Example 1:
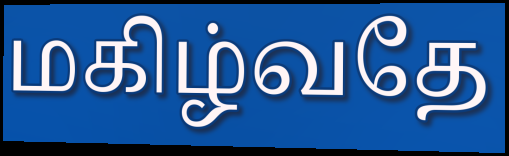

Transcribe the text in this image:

மகிழ்வதே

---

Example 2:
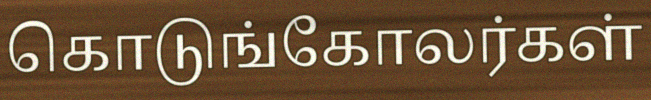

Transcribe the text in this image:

கொடுங்கோலர்கள்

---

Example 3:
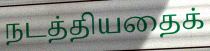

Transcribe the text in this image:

நடத்தியதைக்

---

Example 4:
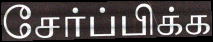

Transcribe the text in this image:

சேர்ப்பிக்க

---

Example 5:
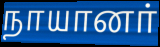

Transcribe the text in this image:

நாயானர்